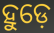
ହୁଡ଼େ